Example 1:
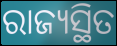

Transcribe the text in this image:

ରାଜ୍ୟସ୍ଥିତ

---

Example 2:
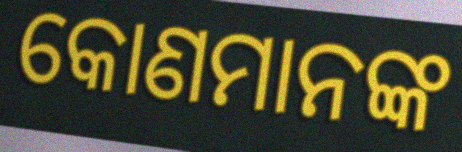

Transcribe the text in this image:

କୋଣମାନଙ୍କ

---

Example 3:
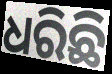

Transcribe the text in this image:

ଧରିଛି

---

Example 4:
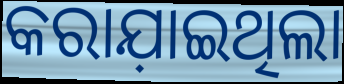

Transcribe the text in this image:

କରାଯ଼ାଇଥିଲା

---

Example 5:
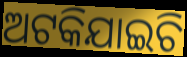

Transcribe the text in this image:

ଅଟକିଯାଇଚି